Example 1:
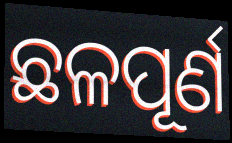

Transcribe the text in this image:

ଛଳପୂର୍ଣ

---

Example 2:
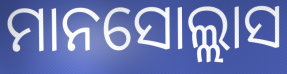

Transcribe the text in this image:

ମାନସୋଲ୍ଲାସ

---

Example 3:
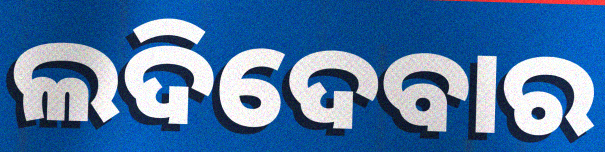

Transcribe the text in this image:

ଲଦିଦେବାର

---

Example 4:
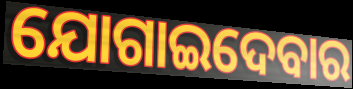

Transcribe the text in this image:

ଯୋଗାଇଦେବାର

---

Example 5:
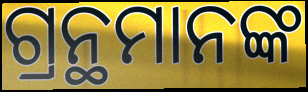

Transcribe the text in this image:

ଗ୍ରନ୍ଥମାନଙ୍କ